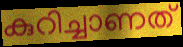
കുറിച്ചാണത്